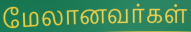
மேலானவர்கள்